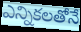
ఎన్నికలతోనే